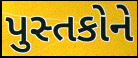
પુસ્તકોને